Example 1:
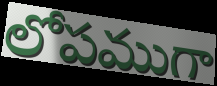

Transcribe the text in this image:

లోపముగా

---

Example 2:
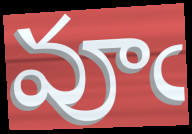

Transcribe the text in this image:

వూఁ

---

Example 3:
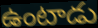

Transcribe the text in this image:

ఉంటాడు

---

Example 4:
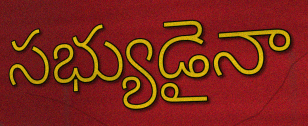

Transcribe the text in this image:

సభ్యుడైనా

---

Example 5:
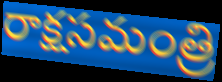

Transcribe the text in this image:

రాక్షసమంత్రి